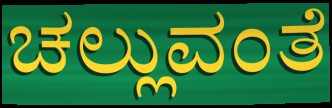
ಚಲ್ಲುವಂತೆ